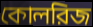
কোলরিজ